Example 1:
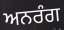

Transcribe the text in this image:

ਅਨਰੰਗ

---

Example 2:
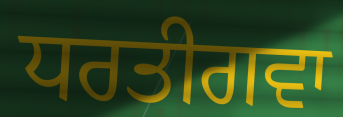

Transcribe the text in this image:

ਧਰਤੀਗਵਾ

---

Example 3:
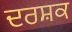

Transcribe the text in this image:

ਦਰਸ਼ਕ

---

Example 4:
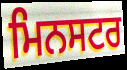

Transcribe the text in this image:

ਮਿਨਸਟਰ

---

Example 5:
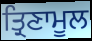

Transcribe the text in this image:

ਤ੍ਰਿਣਾਮੂਲ